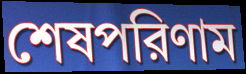
শেষপরিণাম